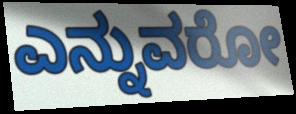
ಎನ್ನುವರೋ